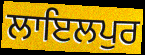
ਲਾਇਲਪੁਰ